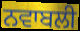
ਨਵਾਬਲੀ